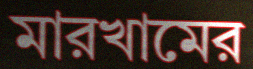
মারখামের